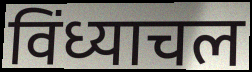
विंध्याचल